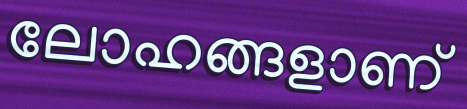
ലോഹങ്ങളാണ്